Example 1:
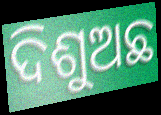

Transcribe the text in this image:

ଦିଶୁଅଛ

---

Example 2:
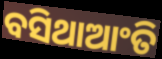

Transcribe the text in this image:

ବସିଥାଆଂତି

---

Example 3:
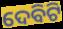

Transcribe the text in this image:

ଦେବିଟି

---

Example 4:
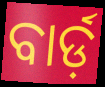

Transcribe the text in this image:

ବାର୍ଡ଼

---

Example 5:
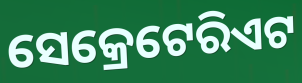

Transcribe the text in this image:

ସେକ୍ରେଟେରିଏଟ